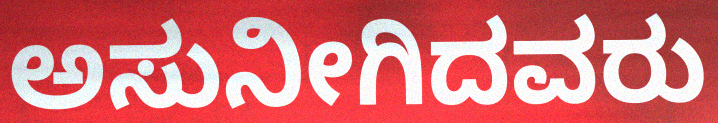
ಅಸುನೀಗಿದವರು